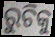
ରୁଚିକୁ